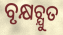
ବୃକ୍ଷଚ୍ଯୁତ